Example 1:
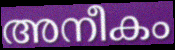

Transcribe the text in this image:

അനീകം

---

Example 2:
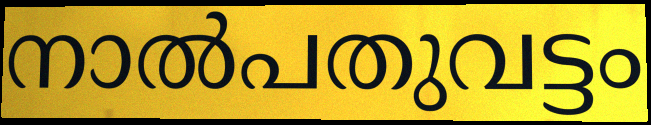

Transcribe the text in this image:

നാൽപതുവട്ടം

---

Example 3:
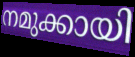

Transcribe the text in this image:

നമുക്കായി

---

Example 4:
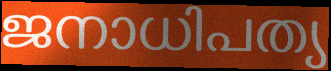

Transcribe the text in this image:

ജനാധിപത്യ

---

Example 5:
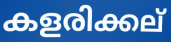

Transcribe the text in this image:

കളരിക്കല്